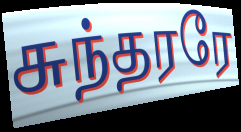
சுந்தரரே